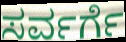
ಸರ್ವರ್ಗೆ